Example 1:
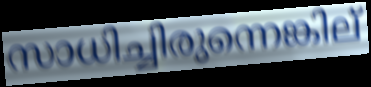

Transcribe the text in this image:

സാധിച്ചിരുന്നെങ്കില്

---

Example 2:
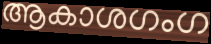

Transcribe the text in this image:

ആകാശഗംഗ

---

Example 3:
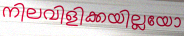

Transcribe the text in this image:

നിലവിളിക്കയില്ലയോ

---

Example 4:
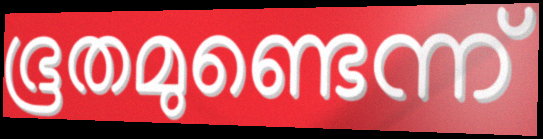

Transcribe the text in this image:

ഭൂതമുണ്ടെന്ന്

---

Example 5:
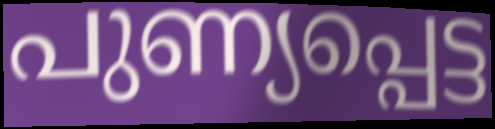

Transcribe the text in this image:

പുണ്യപ്പെട്ട